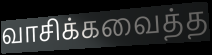
வாசிக்கவைத்த